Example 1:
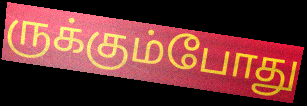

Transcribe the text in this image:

ருக்கும்போது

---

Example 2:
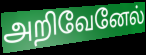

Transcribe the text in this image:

அறிவேனேல்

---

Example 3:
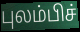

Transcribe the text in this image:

புலம்பிச்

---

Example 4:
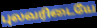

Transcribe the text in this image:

புலவரிடையே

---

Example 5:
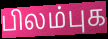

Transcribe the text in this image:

பிலம்புக